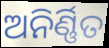
ଅନିର୍ଣ୍ଣିତ